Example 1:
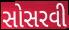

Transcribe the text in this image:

સોસરવી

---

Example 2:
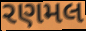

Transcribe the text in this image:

રણમલ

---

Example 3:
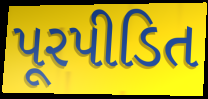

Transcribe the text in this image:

પૂરપીડિત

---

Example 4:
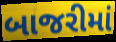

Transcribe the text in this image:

બાજરીમાં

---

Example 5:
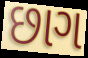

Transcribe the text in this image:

છાગ